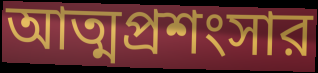
আত্মপ্রশংসার